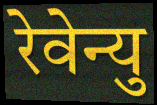
रेवेन्यु